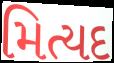
મિત્યદ